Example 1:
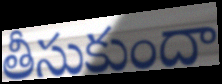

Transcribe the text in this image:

తీసుకుందా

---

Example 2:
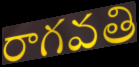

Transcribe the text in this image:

రాగవతి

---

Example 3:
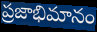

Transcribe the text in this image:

ప్రజాభిమానం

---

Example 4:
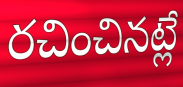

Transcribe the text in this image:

రచించినట్లే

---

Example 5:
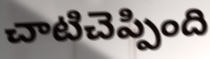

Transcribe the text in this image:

చాటిచెప్పింది